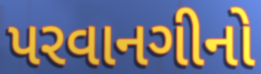
પરવાનગીનો